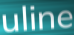
uline